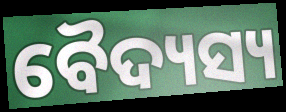
ବୈଦ୍ୟସ୍ୟ